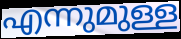
എന്നുമുള്ള